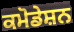
ਕਮੋਡੇਸ਼ਨ